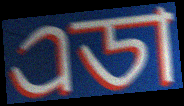
এডা